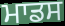
ਮਾਡਸ